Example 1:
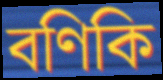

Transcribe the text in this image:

বণিকি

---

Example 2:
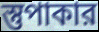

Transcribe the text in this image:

স্তুপাকার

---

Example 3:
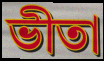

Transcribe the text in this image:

ভীতা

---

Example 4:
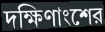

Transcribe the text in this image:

দক্ষিণাংশের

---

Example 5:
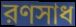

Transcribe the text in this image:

রণসাধ